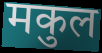
मकुल